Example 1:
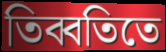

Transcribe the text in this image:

তিব্বতিতে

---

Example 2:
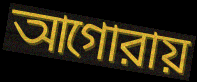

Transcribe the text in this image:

আগোরায়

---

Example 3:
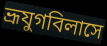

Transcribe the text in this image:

ভ্রূযুগবিলাসে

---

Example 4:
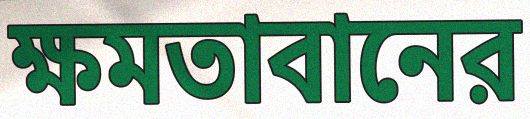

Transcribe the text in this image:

ক্ষমতাবানের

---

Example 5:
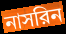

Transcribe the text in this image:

নাসরিন